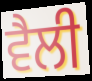
ਵੈਲੀ